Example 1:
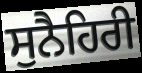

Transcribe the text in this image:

ਸੁਨੈਹਿਰੀ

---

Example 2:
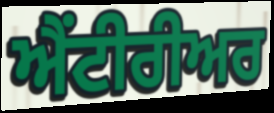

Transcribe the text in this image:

ਐਂਟੀਰੀਅਰ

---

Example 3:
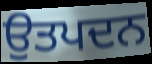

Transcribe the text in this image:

ਉਤਪਦਨ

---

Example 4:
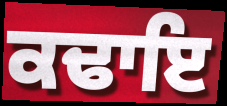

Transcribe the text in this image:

ਕਢਾਇ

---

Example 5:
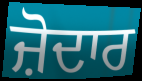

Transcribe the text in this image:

ਜ਼ੋਦਾਰ